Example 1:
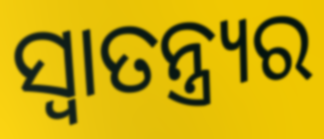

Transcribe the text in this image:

ସ୍ୱାତନ୍ତ୍ର୍ୟର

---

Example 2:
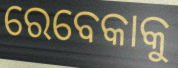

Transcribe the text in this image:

ରେବେକାକୁ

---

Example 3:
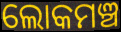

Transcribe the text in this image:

ଲୋକମଞ୍ଚ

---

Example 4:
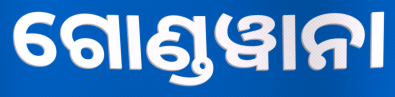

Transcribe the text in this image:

ଗୋଣ୍ଡୱାନା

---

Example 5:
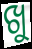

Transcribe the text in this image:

ଖୁ